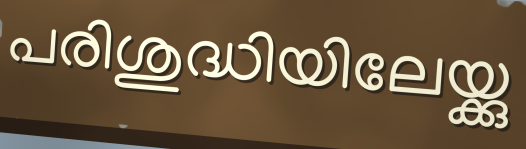
പരിശുദ്ധിയിലേയ്ക്കു